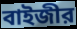
বাইজীর